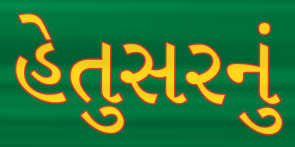
હેતુસરનું